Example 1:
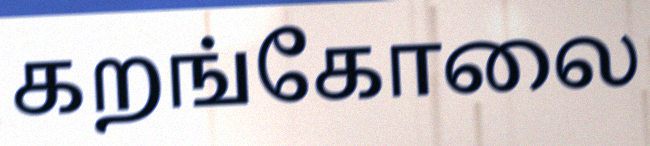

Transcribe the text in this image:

கறங்கோலை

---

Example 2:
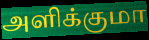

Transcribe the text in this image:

அளிக்குமா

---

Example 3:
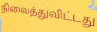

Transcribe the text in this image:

நிலைத்துவிட்டது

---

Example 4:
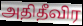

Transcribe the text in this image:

அதிதீவிர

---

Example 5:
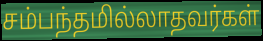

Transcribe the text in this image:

சம்பந்தமில்லாதவர்கள்